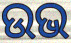
ଉଭ